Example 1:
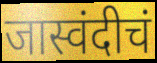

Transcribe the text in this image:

जास्वंदीचं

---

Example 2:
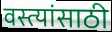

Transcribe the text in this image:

वस्त्यांसाठी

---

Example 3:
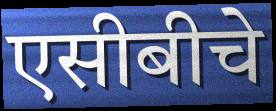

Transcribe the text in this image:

एसीबीचे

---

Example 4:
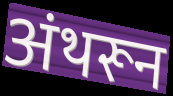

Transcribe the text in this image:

अंथरून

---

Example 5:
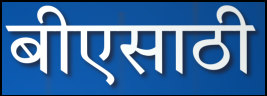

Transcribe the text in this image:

बीएसाठी